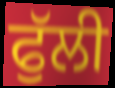
ਫੁੱਲੀ